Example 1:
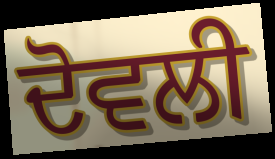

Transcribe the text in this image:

ਦੋਵਲੀ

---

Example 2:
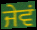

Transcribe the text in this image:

ਜੇਵਂ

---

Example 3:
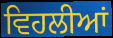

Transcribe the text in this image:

ਵਿਹਲੀਆਂ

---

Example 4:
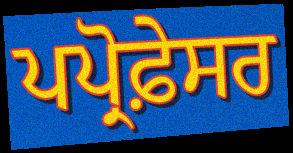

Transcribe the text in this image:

ਪਪ੍ਰੋਫ਼ੇਸਰ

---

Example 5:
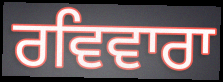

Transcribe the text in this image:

ਰਵਿਵਾਰਾ